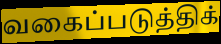
வகைப்படுத்திக்